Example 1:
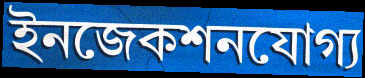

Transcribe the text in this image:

ইনজেকশনযোগ্য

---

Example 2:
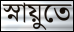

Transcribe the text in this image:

স্নায়ুতে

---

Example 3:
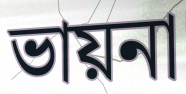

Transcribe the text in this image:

ভায়না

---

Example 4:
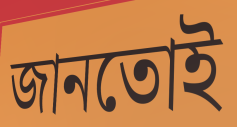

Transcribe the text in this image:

জানতোই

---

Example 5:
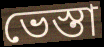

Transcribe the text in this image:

ভেস্তা